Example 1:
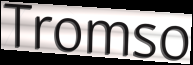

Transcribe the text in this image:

Tromso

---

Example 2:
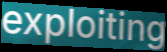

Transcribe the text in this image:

exploiting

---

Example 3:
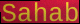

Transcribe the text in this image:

Sahab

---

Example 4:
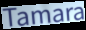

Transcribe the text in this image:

Tamara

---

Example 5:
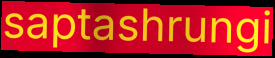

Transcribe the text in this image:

saptashrungi